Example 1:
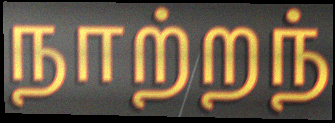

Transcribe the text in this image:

நாற்றந்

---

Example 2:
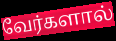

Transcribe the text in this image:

வேர்களால்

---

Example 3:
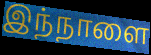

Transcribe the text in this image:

இந்நாளை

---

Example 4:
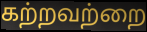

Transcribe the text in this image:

கற்றவற்றை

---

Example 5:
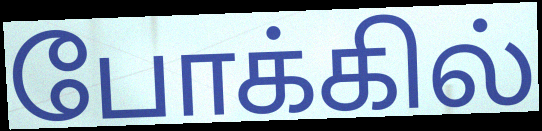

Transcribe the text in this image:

போக்கில்